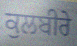
ਕੁਲਬੀਰੇ